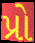
પ્રો